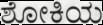
ಶೋಕಿಯ